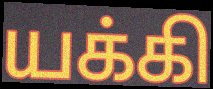
யக்கி